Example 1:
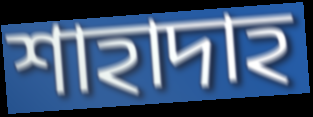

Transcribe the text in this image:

শাহাদাহ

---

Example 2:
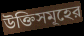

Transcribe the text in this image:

উক্তিসমূহের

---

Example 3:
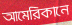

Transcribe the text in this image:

আমেরিকানে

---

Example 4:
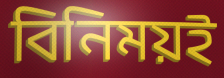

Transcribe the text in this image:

বিনিময়ই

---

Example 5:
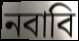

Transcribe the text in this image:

নবাবি